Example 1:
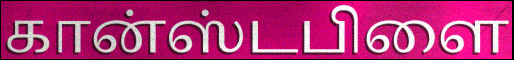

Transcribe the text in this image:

கான்ஸ்டபிளை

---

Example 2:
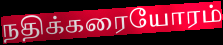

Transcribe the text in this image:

நதிக்கரையோரம்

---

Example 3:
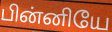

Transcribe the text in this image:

பின்னியே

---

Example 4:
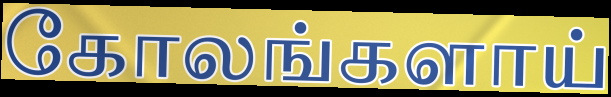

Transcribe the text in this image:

கோலங்களாய்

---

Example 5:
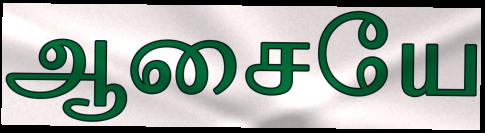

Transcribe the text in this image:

ஆசையே